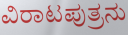
ವಿರಾಟಪುತ್ರನು